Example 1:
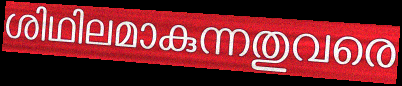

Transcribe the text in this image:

ശിഥിലമാകുന്നതുവരെ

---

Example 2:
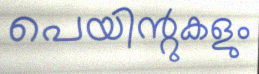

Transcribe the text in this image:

പെയിന്റുകളും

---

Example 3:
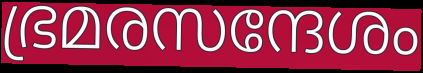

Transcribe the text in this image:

ഭ്രമരസന്ദേശം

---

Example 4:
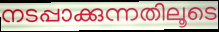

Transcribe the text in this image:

നടപ്പാക്കുന്നതിലൂടെ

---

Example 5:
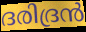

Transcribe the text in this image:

ദരിദ്രൻ